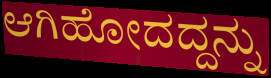
ಆಗಿಹೋದದ್ದನ್ನು